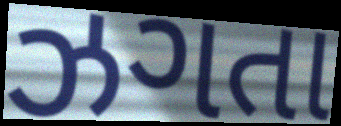
ઝગતા